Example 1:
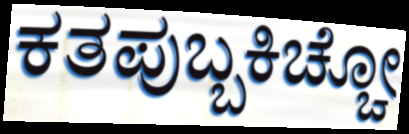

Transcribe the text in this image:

ಕತಪುಬ್ಬಕಿಚ್ಚೋ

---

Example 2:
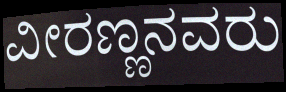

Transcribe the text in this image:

ವೀರಣ್ಣನವರು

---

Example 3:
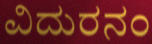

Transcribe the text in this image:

ವಿದುರನಂ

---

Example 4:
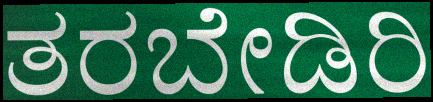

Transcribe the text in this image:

ತರಬೇಡಿರಿ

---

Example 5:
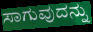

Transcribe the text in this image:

ಸಾಗುವುದನ್ನು